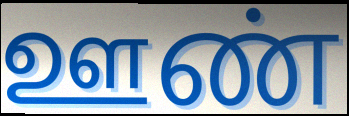
ஊண்